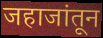
जहाजांतून